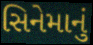
સિનેમાનું